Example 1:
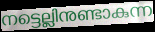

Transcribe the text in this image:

നട്ടെല്ലിനുണ്ടാകുന്ന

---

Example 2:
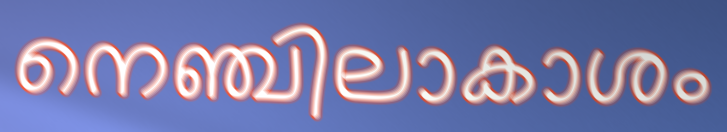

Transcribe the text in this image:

നെഞ്ചിലാകാശം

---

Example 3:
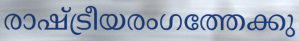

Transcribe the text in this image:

രാഷ്ട്രീയരംഗത്തേക്കു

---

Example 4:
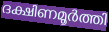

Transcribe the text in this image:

ദക്ഷിണമൂർത്തി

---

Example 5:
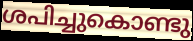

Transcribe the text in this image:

ശപിച്ചുകൊണ്ടു